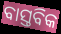
ବାସ୍ତବିକ